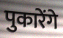
पुकारेंगे